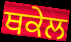
ਥਕੇਲ